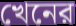
খেনের